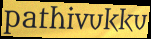
pathivukku